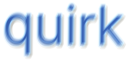
quirk